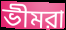
ভীমরা